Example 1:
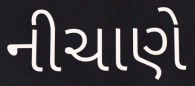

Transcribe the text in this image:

નીચાણે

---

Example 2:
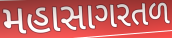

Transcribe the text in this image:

મહાસાગરતળ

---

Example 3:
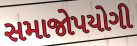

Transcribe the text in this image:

સમાજોપયોગી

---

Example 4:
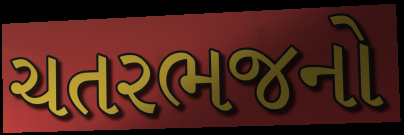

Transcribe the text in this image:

ચતરભજનો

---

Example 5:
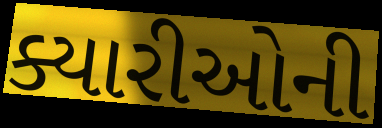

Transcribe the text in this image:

ક્યારીઓની